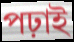
পঢ়াই